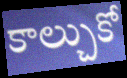
కాల్చుకో